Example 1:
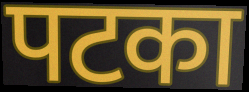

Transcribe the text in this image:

पटका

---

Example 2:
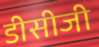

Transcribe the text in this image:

डीसीजी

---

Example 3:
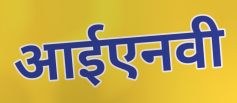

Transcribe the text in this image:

आईएनवी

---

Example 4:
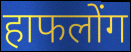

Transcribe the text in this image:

हाफलोंग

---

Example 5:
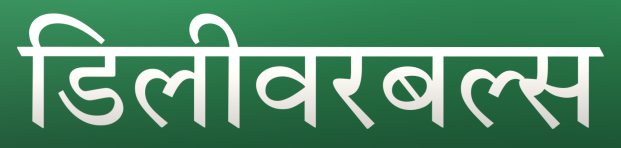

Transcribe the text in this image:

डिलीवरबल्स